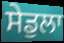
ਸੇਡੁਲਾ